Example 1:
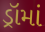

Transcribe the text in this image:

ડ્રૉમાં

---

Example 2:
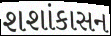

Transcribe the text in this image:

શશાંકાસન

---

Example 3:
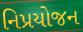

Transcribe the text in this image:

નિપ્રયોજન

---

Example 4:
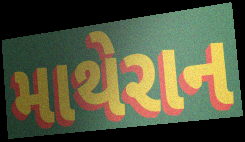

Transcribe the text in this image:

માથેરાન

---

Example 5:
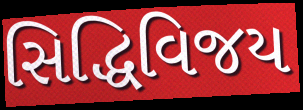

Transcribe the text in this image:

સિદ્ધિવિજય